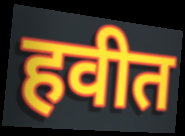
हवीत